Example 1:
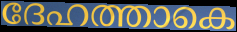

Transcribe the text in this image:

ദേഹത്താകെ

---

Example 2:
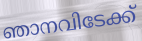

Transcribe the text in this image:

ഞാനവിടേക്ക്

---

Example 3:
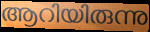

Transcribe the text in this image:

ആറിയിരുന്നു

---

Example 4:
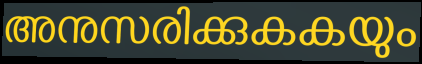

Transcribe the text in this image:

അനുസരിക്കുകകയും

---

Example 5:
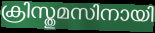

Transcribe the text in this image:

ക്രിസ്തുമസിനായി